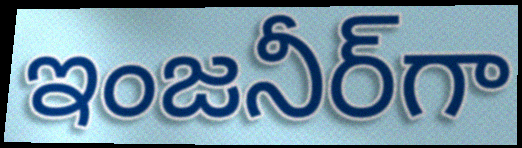
ఇంజనీర్‌గా